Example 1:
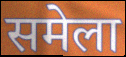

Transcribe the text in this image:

समेला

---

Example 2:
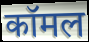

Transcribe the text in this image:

कॉमल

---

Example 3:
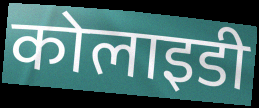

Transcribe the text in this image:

कोलाइडी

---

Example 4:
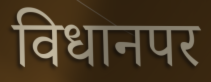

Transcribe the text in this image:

विधानपर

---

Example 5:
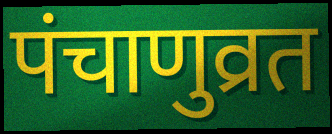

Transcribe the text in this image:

पंचाणुव्रत